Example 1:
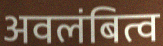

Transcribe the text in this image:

अवलंबित्व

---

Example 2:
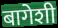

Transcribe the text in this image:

बागेशी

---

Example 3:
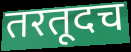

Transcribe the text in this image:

तरतूदच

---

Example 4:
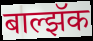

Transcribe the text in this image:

बाल्झॅक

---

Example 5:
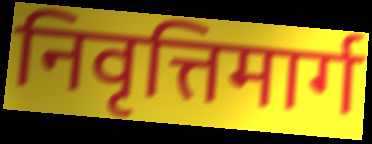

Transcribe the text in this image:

निवृत्तिमार्ग